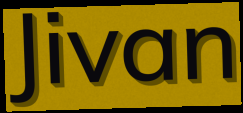
Jivan